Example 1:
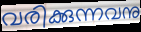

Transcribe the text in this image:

വരിക്കുന്നവനു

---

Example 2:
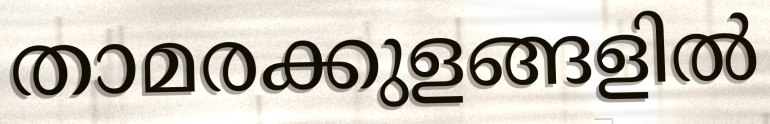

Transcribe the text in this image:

താമരക്കുളങ്ങളിൽ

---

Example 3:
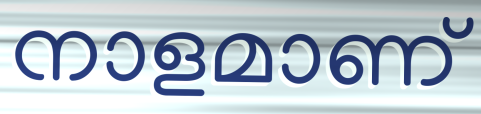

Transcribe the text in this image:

നാളമാണ്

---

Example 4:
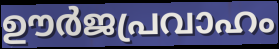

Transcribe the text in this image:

ഊർജപ്രവാഹം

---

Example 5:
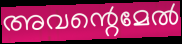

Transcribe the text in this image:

അവന്റെമേൽ